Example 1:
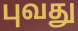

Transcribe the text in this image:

புவது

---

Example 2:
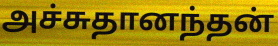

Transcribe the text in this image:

அச்சுதானந்தன்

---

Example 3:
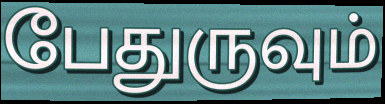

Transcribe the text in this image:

பேதுருவும்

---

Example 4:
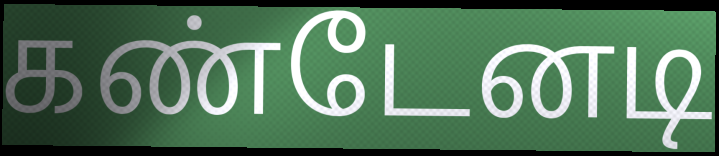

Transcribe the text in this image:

கண்டேனடி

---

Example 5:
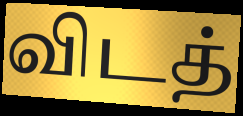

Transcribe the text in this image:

விடத்